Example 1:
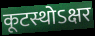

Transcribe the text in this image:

कूटस्थोऽक्षर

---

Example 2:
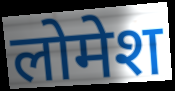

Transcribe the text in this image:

लोमेश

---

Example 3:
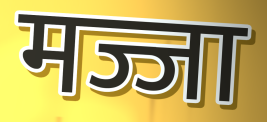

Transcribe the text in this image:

मज्जा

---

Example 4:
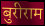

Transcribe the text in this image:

बुरीराम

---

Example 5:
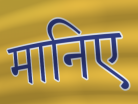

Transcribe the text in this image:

मानिए